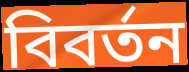
বিবর্তন